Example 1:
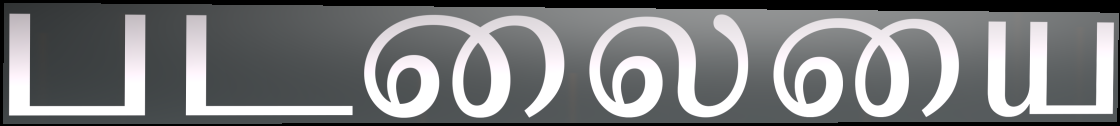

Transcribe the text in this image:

படலையை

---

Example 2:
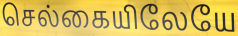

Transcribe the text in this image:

செல்கையிலேயே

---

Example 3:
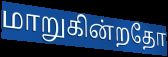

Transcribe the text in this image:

மாறுகின்றதோ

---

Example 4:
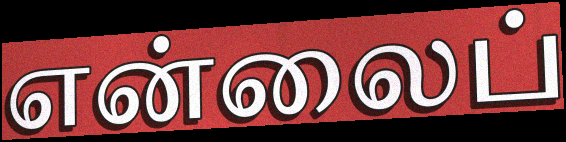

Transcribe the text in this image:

என்லைப்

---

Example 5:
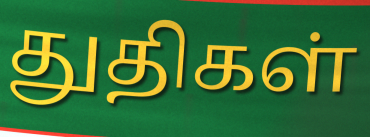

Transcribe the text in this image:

துதிகள்